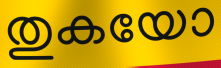
തുകയോ